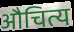
औचित्य